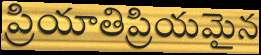
ప్రియాతిప్రియమైన